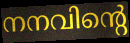
നനവിന്റെ